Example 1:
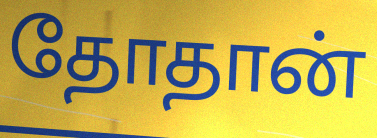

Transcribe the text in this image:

தோதான்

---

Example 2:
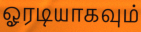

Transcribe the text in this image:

ஓரடியாகவும்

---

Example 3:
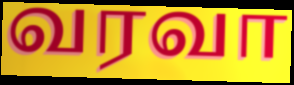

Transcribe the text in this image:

வரவா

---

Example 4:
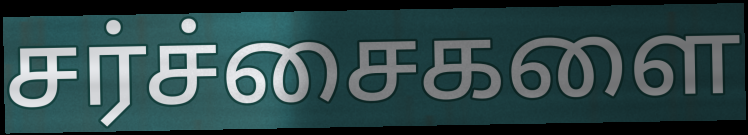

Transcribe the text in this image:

சர்ச்சைகளை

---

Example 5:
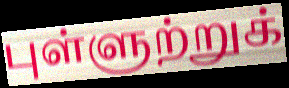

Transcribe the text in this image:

புள்ளுற்றுக்